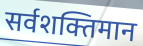
सर्वशक्‍तिमान